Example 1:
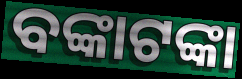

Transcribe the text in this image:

ବଙ୍କାଟଙ୍କା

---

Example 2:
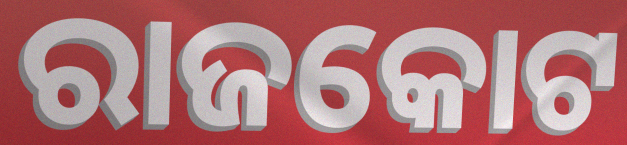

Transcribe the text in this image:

ରାଜକୋଟ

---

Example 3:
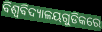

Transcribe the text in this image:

ବିଶ୍ୱବିଦ୍ୟାଳୟଗୁଡିକରେ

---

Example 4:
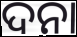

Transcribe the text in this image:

ଦନା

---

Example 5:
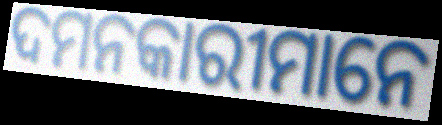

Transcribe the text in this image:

ଦମନକାରୀମାନେ